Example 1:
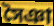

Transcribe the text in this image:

সৈঞা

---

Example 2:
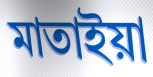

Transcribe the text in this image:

মাতাইয়া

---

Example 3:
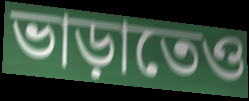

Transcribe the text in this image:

ভাড়াতেও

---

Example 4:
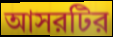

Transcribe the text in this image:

আসরটির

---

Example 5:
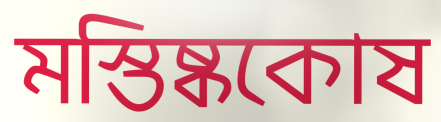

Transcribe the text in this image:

মস্তিষ্ককোষ